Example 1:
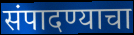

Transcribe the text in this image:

संपादण्याचा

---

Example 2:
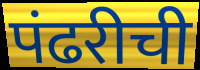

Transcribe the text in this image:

पंढरीची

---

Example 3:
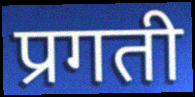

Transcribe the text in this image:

प्रगती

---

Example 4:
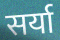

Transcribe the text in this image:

सर्या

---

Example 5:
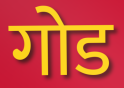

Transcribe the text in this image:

गोड